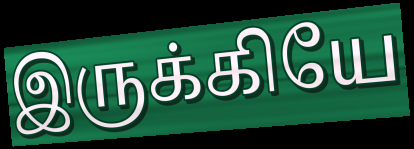
இருக்கியே